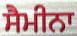
ਸੈਮੀਨਾ